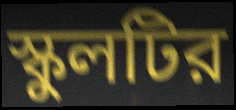
স্কুলটির